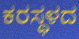
ಕರಸ್ಥಳದ